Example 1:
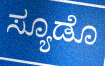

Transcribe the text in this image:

ಸ್ಯೂಡೊ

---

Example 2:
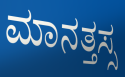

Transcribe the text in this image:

ಮಾನತ್ತಸ್ಸ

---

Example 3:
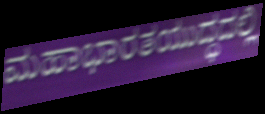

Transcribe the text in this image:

ಮಹಾಭಾರತಯುದ್ಧದಲ್ಲಿ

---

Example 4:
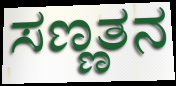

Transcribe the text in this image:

ಸಣ್ಣತನ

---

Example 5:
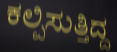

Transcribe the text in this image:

ಕಲ್ಪಿಸುತ್ತಿದ್ದ